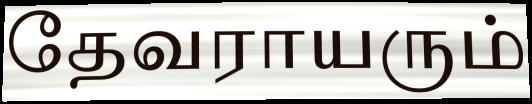
தேவராயரும்